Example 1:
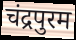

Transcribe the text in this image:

चंद्रपुरम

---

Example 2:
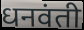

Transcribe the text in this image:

धनवंती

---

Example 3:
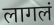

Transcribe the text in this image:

लागलं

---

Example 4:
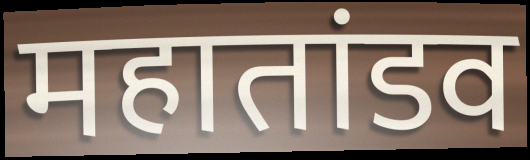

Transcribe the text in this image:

महातांडव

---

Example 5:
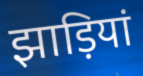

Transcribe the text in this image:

झाड़ियां